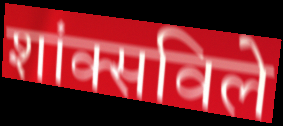
शांक्सविले